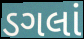
ડગલાં